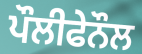
ਪੌਲੀਫੇਨੌਲ